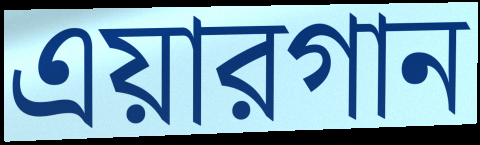
এয়ারগান